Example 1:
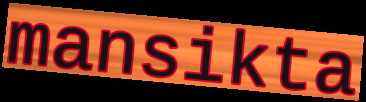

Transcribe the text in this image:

mansikta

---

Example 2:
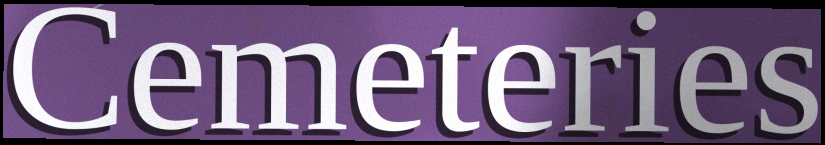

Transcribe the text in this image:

Cemeteries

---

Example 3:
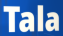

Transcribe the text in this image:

Tala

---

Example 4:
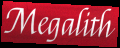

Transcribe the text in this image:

Megalith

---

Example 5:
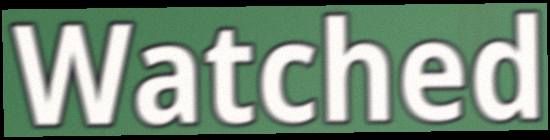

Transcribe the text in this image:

Watched